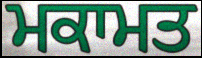
ਮਕਾਮਤ